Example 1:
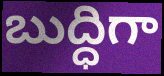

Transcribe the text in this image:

బుద్ధిగా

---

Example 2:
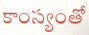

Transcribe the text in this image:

కాంస్యంతో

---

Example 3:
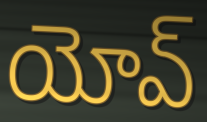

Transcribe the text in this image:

యోవ్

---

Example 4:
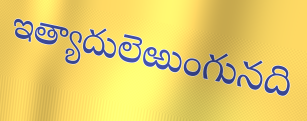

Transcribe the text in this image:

ఇత్యాదులెఱుంగునది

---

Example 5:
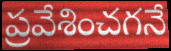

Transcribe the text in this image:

ప్రవేశించగనే